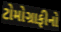
ટોમોગ્રાફીનો